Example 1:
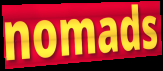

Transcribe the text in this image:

nomads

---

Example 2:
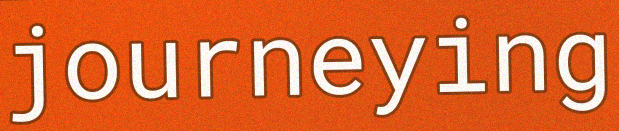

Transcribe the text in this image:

journeying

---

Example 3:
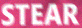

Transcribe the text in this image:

STEAR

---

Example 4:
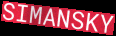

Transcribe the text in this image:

SIMANSKY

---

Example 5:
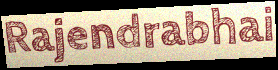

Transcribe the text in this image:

Rajendrabhai